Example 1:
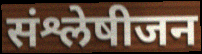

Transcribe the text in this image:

संश्लेषीजन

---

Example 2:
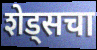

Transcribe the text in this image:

शेड्सचा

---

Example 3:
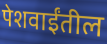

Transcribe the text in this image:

पेशवाईंतील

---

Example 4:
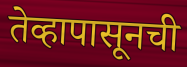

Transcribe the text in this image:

तेव्हापासूनची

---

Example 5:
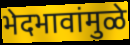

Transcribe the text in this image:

भेदभावांमुळे